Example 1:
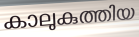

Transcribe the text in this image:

കാലുകുത്തിയ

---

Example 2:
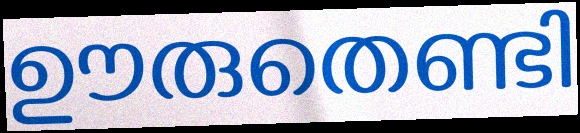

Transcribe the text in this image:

ഊരുതെണ്ടി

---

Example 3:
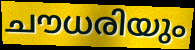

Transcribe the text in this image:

ചൗധരിയും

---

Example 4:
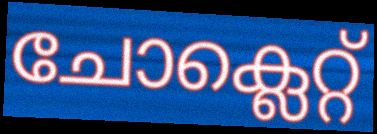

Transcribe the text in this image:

ചോക്ലെറ്റ്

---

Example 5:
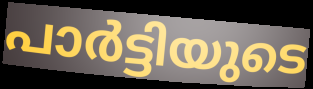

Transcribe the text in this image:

പാർട്ടിയുടെ